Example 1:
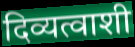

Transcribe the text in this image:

दिव्यत्वाशी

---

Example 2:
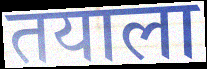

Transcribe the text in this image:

तयाला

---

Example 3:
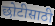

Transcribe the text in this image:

छोटीसाठी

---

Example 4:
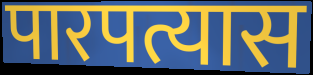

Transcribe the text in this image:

पारपत्यास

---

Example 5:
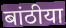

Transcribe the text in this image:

बांठीया